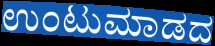
ಉಂಟುಮಾಡದ